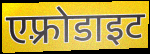
एफ़्रोडाइट